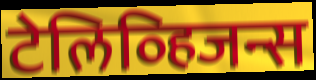
टेलिव्हिजन्स